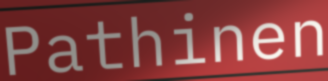
Pathinen